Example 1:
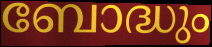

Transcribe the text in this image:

ബോദ്ധും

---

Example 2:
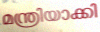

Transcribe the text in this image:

മന്ത്രിയാക്കി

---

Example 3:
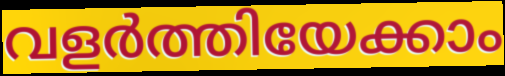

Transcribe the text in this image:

വളർത്തിയേക്കാം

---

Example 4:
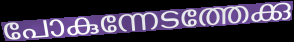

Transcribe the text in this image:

പോകുന്നേടത്തേക്കു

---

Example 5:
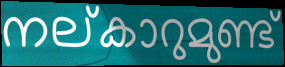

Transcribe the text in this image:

നല്കാറുമുണ്ട്